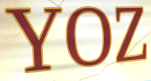
YOZ